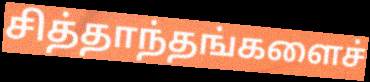
சித்தாந்தங்களைச்